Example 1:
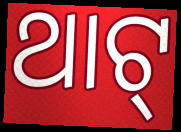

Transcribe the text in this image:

ଥାଟ୍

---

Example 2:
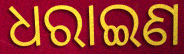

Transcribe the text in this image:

ଧରାଇଣ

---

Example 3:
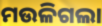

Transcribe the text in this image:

ମଉଳିଗଲା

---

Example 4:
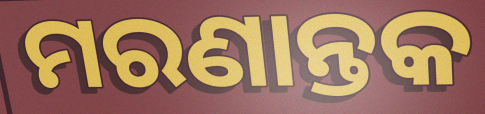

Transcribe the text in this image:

ମରଣାନ୍ତକ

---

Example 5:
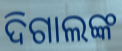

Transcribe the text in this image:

ଦିଗାଲଙ୍କ